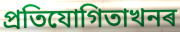
প্ৰতিযোগিতাখনৰ